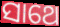
ସାଥେ